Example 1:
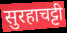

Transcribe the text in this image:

सुरहाचट्टी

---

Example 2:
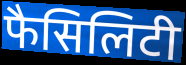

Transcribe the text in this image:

फैसिलिटी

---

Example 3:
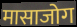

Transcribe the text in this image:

मासाजोग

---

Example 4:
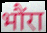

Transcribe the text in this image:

भौंरा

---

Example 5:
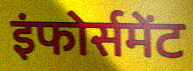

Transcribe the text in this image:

इंफोर्समेंट